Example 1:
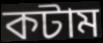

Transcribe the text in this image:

কটাম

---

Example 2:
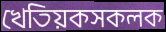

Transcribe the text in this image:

খেতিয়কসকলক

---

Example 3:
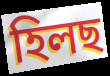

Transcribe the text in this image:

হিলছ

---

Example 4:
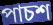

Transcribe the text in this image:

পাচশ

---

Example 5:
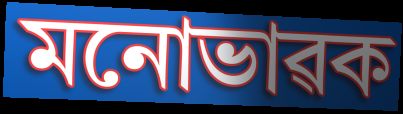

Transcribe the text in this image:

মনোভাৱক